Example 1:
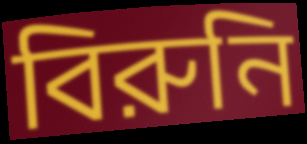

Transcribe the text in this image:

বিরুনি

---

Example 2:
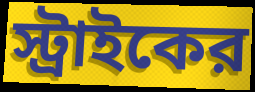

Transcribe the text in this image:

স্ট্রাইকের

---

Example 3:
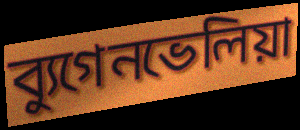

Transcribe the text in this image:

ব্যুগেনভেলিয়া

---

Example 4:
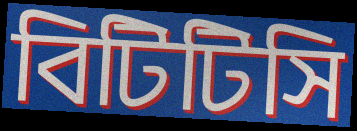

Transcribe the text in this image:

বিটিটিসি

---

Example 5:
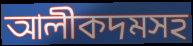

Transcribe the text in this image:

আলীকদমসহ